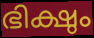
ഭിക്ഷും